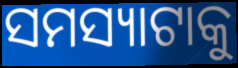
ସମସ୍ୟାଟାକୁ